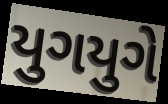
યુગયુગે